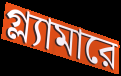
গ্ল্যামারে